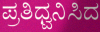
ಪ್ರತಿಧ್ವನಿಸಿದ